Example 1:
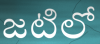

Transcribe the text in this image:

జటిలో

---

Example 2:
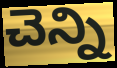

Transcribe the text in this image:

చెన్ని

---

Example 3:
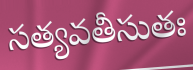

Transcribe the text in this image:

సత్యవతీసుతః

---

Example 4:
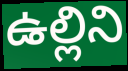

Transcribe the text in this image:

ఉల్లిని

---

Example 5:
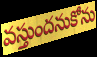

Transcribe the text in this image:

వస్తుందనుకోను